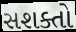
સશક્તો